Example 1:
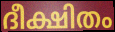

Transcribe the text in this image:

ദീക്ഷിതം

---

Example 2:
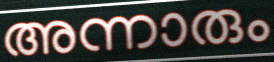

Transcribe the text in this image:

അന്നാരും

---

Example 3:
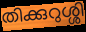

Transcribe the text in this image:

തിക്കുറുശ്ശി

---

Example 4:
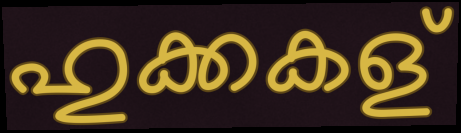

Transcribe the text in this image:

ഹുക്കകള്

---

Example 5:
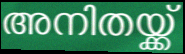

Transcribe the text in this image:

അനിതയ്ക്ക്